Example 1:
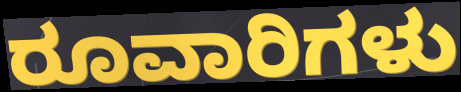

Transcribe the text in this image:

ರೂವಾರಿಗಳು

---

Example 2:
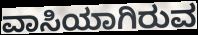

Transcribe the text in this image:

ವಾಸಿಯಾಗಿರುವ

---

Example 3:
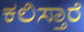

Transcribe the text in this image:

ಕಲಿಸ್ತಾರೆ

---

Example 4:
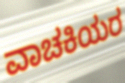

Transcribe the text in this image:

ವಾಚಕಿಯರ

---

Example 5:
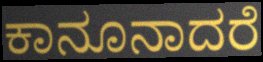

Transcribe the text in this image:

ಕಾನೂನಾದರೆ